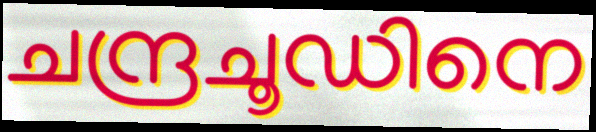
ചന്ദ്രചൂഡിനെ